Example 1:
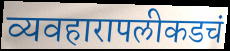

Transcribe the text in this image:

व्यवहारापलीकडचं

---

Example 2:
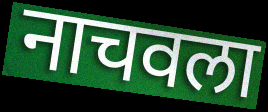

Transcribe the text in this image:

नाचवला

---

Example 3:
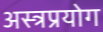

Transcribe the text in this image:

अस्त्रप्रयोग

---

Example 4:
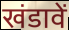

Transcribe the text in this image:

खंडावें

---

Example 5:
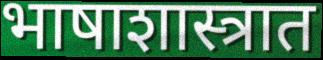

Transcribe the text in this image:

भाषाशास्त्रात